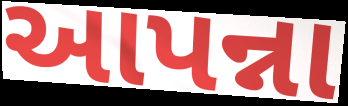
આપન્ના